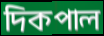
দিকপাল